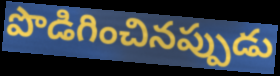
పొడిగించినప్పుడు